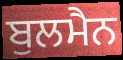
ਬੁਲਮੈਨ